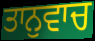
ਤਾਨੁਵਾਚ